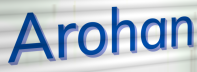
Arohan